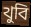
থুবি